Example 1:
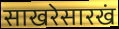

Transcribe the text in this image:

साखरेसारखं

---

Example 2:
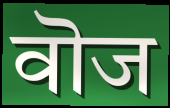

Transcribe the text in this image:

वॊज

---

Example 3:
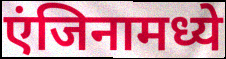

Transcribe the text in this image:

एंजिनामध्ये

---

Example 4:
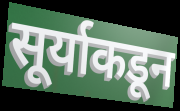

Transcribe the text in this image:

सूर्याकडून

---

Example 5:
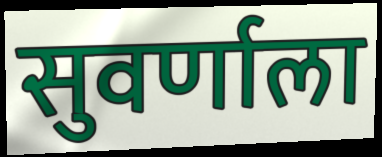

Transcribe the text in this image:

सुवर्णाला